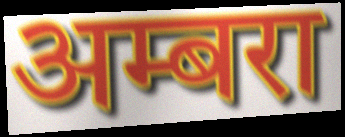
अम्बरा